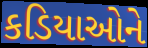
કડિયાઓને